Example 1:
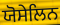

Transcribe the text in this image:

ਯੋਸੇਲਿਨ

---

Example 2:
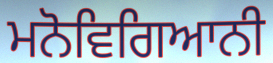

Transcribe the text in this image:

ਮਨੋਵਿਗਿਆਨੀ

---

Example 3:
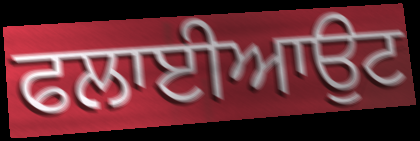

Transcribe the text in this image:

ਫਲਾਈਆਉਟ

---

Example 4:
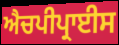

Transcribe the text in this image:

ਐਚਪੀਪ੍ਰਾਈਸ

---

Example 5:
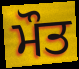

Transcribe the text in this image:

ਮੌਤ